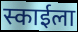
स्काईला